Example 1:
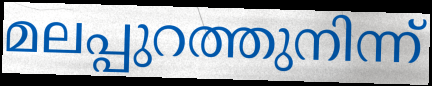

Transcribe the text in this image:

മലപ്പുറത്തുനിന്ന്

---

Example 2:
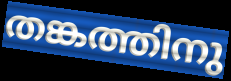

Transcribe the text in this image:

തങ്കത്തിനു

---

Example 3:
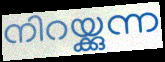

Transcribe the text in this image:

നിറയ്ക്കുന്ന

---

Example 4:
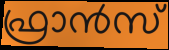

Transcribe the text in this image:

ഫ്രാൻസ്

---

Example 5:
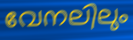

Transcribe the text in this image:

വേനലിലും